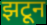
झटून